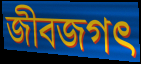
জীবজগৎ